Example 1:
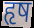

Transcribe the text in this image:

हृष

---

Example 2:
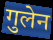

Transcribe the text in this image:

गुलेन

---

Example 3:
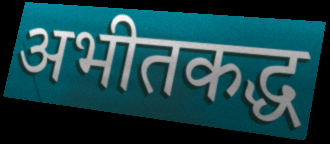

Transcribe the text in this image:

अभीतकद्ध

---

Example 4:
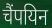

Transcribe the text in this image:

चैंपयिन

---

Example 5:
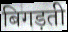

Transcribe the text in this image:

बिगड़ती